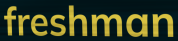
freshman